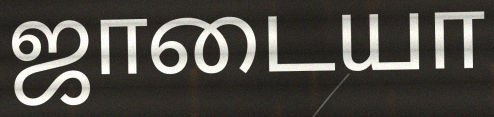
ஜாடையா